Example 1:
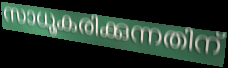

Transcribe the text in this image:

സാധൂകരിക്കുന്നതിന്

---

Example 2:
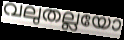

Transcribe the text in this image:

വലുതല്ലയോ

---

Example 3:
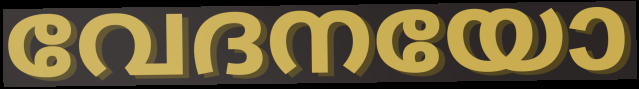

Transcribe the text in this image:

വേദനയോ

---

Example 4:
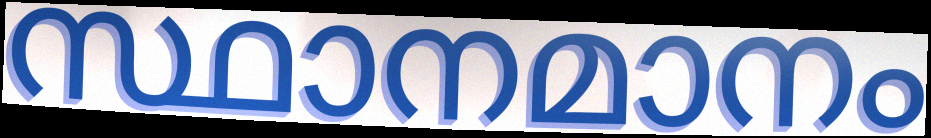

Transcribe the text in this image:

സ്ഥാനമാനം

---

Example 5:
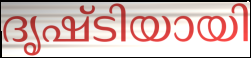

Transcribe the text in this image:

ദൃഷ്ടിയായി